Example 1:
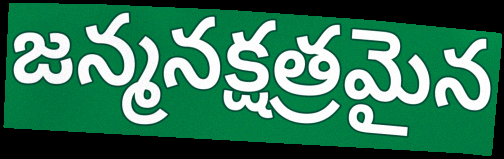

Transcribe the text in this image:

జన్మనక్షత్రమైన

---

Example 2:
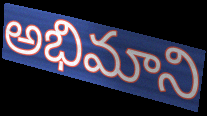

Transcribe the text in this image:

అభిమాని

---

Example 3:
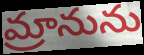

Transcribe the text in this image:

మ్రానును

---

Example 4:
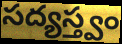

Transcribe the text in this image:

సద్యస్త్వం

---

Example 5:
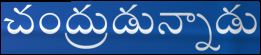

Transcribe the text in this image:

చంద్రుడున్నాడు